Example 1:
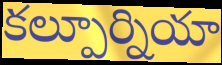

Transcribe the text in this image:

కల్పూర్నియా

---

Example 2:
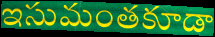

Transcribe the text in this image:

ఇసుమంతకూడా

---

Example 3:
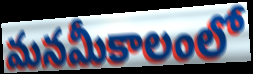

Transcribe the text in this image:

మనమీకాలంలో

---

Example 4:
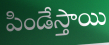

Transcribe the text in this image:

పిండేస్తాయి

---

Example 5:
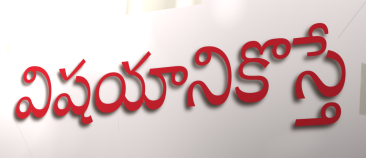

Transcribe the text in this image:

విషయానికొస్తే